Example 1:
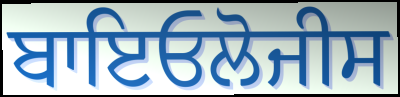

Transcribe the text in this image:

ਬਾਇਓਲੋਜੀਸ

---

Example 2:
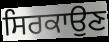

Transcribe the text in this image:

ਸਿਰਕਾਉਣ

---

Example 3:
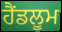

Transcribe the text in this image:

ਹੈਂਡਲੂਮ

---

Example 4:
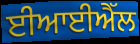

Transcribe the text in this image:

ਈਆਈਐੱਲ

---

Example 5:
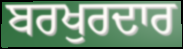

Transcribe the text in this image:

ਬਰਖੁਰਦਾਰ